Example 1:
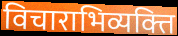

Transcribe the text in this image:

विचाराभिव्यक्ति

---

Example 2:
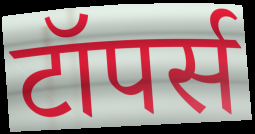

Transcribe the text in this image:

टॉपर्स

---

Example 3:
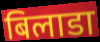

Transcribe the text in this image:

बिलाडा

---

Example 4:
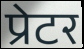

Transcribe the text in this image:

प्रेटर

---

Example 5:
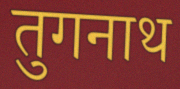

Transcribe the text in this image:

तुगनाथ